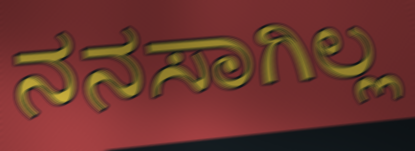
ನನಸಾಗಿಲ್ಲ